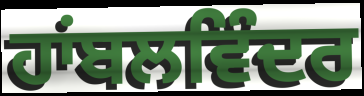
ਹਾਂਬਲਵਿੰਦਰ